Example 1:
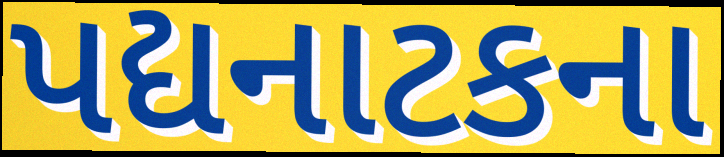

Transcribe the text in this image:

પદ્યનાટકના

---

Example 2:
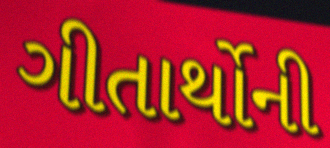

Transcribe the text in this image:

ગીતાર્થોની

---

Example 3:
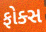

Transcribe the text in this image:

ફોક્સ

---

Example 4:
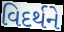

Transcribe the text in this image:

વિદર્થને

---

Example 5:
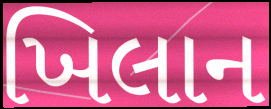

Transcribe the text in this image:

ખિલાન